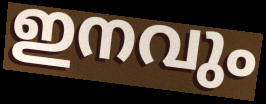
ഇനവും